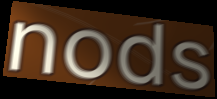
nods